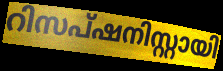
റിസപ്ഷനിസ്റ്റായി